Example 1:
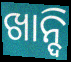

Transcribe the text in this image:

ଖାନ୍ଦି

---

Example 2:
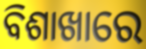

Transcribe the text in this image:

ବିଶାଖାରେ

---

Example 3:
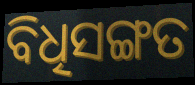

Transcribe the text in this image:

ବିଧିସଙ୍ଗତ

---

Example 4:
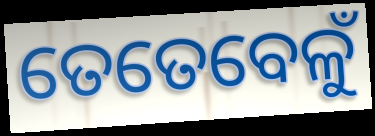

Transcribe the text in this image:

ତେତେବେଳୁଁ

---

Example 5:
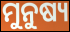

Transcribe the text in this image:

ମୁନୁଷ୍ୟ